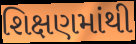
શિક્ષણમાંથી